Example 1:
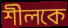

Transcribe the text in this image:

শীলকে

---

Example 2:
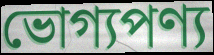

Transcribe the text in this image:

ভোগ্যপণ্য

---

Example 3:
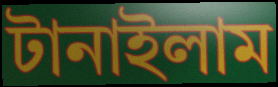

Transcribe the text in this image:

টানাইলাম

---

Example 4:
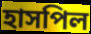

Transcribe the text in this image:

হাসপিল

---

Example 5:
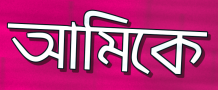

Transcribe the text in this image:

আমিকে